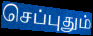
செப்புதும்